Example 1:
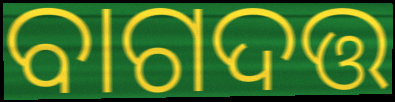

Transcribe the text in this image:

ବାଗଦତ୍ତ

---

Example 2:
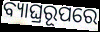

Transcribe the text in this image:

ବ୍ୟାଘ୍ରରୂପରେ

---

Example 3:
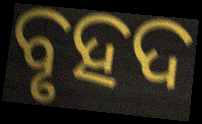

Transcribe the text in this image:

ବୃହଦ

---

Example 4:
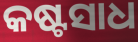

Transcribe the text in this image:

କଷ୍ଟସାଧ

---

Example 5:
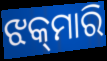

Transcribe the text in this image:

ଝକ୍‌ମାରି